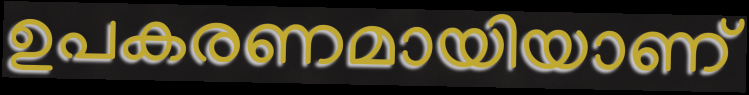
ഉപകരണമായിയാണ്